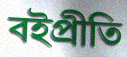
বইপ্রীতি